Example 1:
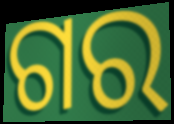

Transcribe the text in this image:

ଗର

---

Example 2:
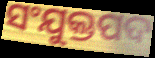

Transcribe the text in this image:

ସଂଯୁକ୍ତପଦ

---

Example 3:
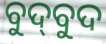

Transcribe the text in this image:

ବୁଦ୍‌ବୁଦ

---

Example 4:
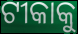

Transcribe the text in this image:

ଟୀକାକୁ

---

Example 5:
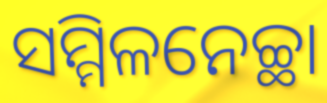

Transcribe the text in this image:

ସମ୍ମିଳନେଚ୍ଛା